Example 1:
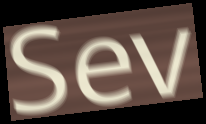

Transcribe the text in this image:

Sev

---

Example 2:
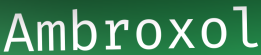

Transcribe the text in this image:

Ambroxol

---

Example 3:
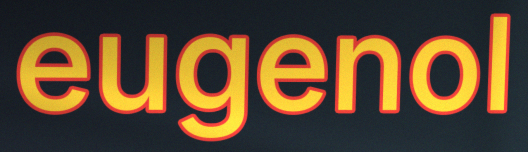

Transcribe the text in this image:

eugenol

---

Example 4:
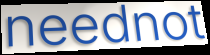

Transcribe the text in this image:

neednot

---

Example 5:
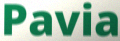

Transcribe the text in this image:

Pavia